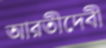
আরতীদেবী